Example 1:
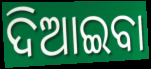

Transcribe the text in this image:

ଦିଆଇବା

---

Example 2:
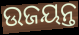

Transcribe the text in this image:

ଉଜୟନ୍ତ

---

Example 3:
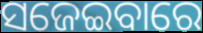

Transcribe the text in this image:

ସଜେଇବାରେ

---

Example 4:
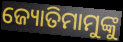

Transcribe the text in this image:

ଜ୍ୟୋତିମାମୁଙ୍କୁ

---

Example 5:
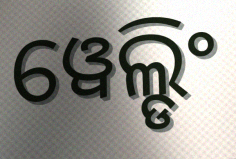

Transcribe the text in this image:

ୱେଲ୍ଡିଂ